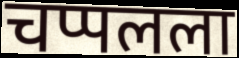
चप्पलला